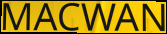
MACWAN